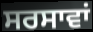
ਸਰਸਾਵਾਂ